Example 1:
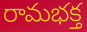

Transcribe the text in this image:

రామభక్త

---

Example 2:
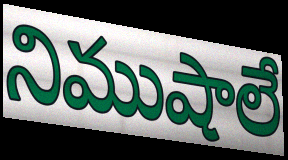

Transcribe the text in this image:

నిముషాలే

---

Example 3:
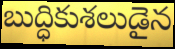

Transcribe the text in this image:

బుద్ధికుశలుడైన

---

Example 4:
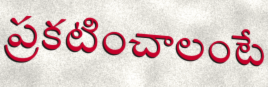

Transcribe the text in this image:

ప్రకటించాలంటే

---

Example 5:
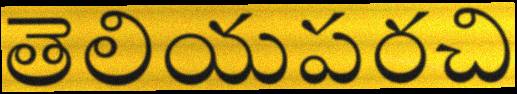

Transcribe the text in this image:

తెలియపరచి